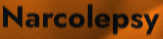
Narcolepsy